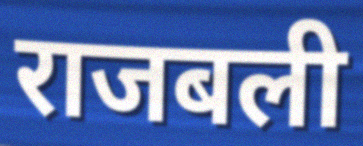
राजबली